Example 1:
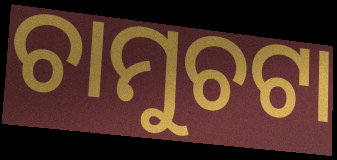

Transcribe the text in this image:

ଚାମୁଚଟା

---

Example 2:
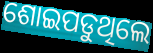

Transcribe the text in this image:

ଶୋଇପଡୁଥିଲେ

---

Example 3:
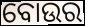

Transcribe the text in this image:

ବୋଉର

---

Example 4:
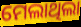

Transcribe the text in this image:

ମେଲାଥିଲା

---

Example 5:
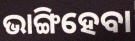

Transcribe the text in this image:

ଭାଙ୍ଗିହେବା